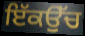
ਇੱਕਉੱਚ